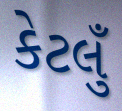
કેટલુઁ